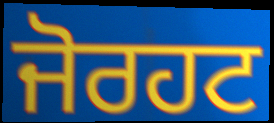
ਜੋਰਹਟ